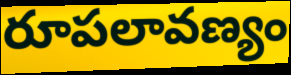
రూపలావణ్యం